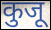
कुजू